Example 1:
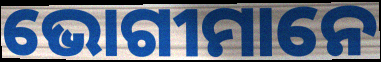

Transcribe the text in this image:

ଭୋଗୀମାନେ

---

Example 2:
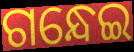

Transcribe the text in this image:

ଗନ୍ଧେଇ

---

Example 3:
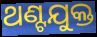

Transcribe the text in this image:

ଥଣ୍ଟଯୁକ୍ତ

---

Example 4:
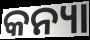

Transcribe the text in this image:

କନ୍ୟା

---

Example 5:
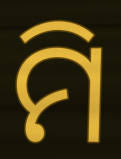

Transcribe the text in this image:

ମି